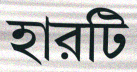
হারটি